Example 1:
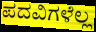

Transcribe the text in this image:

ಪದವಿಗಳೆಲ್ಲ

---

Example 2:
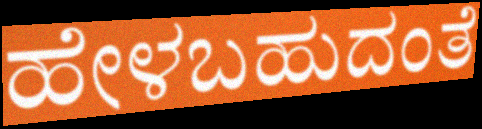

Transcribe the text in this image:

ಹೇಳಬಹುದಂತೆ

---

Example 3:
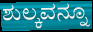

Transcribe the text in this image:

ಶುಲ್ಕವನ್ನೂ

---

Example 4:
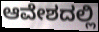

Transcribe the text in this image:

ಆವೇಶದಲ್ಲಿ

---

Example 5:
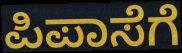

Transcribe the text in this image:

ಪಿಪಾಸೆಗೆ